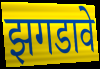
झगडावे